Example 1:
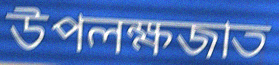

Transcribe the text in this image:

উপলক্ষজাত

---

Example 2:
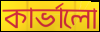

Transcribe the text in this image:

কার্ভালো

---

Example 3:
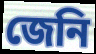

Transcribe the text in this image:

জেনি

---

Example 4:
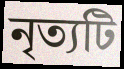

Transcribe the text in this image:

নৃত্যটি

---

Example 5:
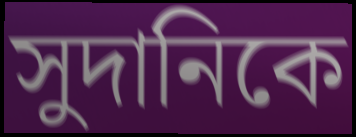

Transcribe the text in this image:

সুদানিকে